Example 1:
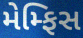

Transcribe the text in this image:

મેમ્ફિસ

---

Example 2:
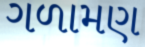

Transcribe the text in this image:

ગળામણ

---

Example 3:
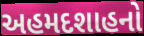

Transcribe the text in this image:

અહમદશાહનો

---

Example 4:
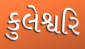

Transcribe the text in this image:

કુલેશ્વરિ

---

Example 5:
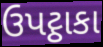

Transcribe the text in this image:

ઉપટ્ઠાકા